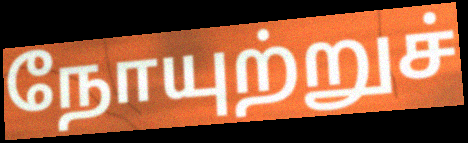
நோயுற்றுச்